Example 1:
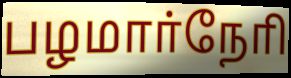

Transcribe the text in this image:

பழமார்நேரி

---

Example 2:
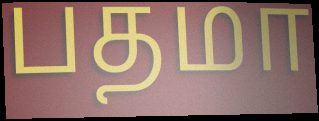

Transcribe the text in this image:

பதமா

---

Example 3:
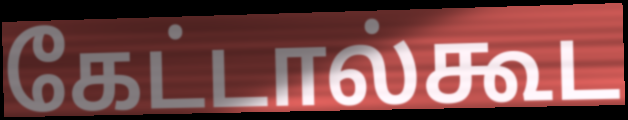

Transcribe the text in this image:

கேட்டால்கூட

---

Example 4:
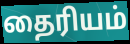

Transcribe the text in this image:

தைரியம்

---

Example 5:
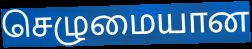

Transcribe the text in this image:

செழுமையான